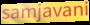
samjavani